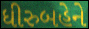
ધીરુબહેને